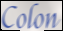
Colon